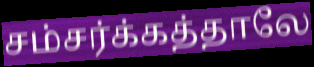
சம்சர்க்கத்தாலே